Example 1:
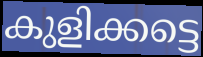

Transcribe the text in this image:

കുളിക്കട്ടെ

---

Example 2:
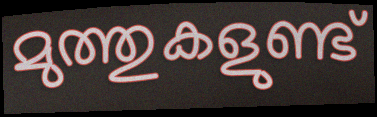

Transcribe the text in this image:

മുത്തുകളുണ്ട്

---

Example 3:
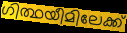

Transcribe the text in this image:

ഗിത്ഥയീമിലേക്ക്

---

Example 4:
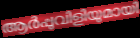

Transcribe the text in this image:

ആർപ്പുവിളിയുമായി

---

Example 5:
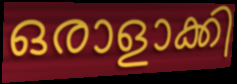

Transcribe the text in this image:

ഒരാളാക്കി